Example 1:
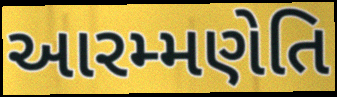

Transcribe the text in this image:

આરમ્મણેતિ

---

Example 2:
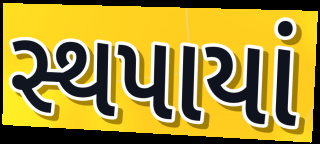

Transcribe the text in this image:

સ્થપાયાં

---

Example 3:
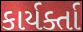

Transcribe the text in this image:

કાર્યર્ક્તા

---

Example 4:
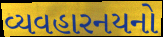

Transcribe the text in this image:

વ્યવહારનયનો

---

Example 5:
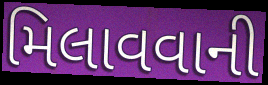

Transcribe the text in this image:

મિલાવવાની